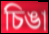
চিঙা